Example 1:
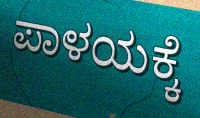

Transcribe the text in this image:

ಪಾಳಯಕ್ಕೆ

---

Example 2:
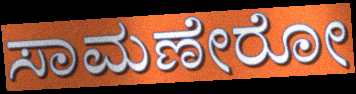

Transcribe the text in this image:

ಸಾಮಣೇರೋ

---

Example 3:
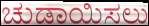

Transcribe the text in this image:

ಚುಡಾಯಿಸಲು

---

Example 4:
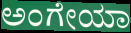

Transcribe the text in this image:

ಅಂಗೇಯಾ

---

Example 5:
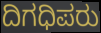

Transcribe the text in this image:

ದಿಗಧಿಪರು